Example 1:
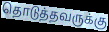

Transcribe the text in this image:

தொடுத்தவருக்கு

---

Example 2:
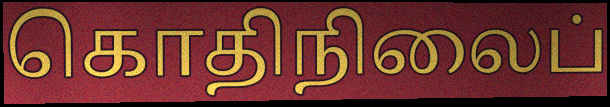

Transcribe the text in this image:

கொதிநிலைப்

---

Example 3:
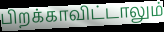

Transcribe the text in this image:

பிறக்காவிட்டாலும்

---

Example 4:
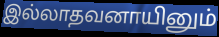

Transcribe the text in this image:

இல்லாதவனாயினும்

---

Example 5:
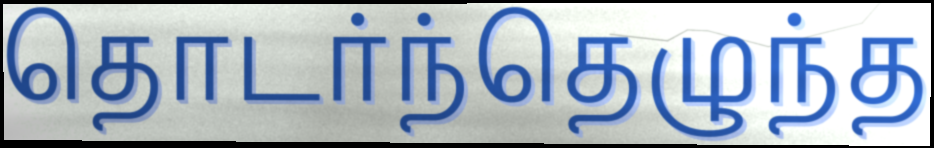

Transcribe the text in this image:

தொடர்ந்தெழுந்த